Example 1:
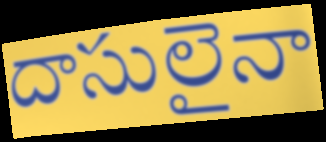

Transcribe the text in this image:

దాసులైనా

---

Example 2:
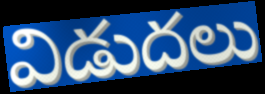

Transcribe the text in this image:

విడుదలు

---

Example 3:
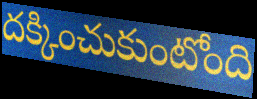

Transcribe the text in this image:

దక్కించుకుంటోంది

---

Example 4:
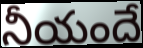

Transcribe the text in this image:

నీయందే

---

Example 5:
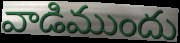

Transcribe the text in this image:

వాడిముందు